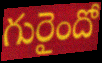
గురైందో